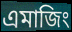
এমাজিং